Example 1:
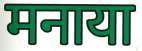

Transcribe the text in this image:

मनाया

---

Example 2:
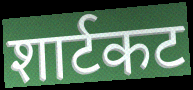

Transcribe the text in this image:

शार्टकट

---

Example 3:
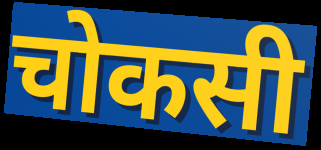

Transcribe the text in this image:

चोकसी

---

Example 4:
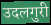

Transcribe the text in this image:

उदलगुरी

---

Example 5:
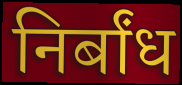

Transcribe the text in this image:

निर्बांध